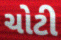
ચોટી